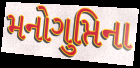
મનોગુપ્તિના